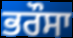
ਭਰੌਸਾ